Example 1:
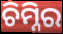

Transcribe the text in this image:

ଚିମ୍ନିର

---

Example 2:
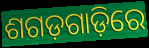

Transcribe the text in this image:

ଶଗଡ଼ଗାଡ଼ିରେ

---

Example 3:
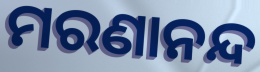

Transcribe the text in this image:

ମରଣାନନ୍ଦ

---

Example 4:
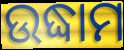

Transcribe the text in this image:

ଉଦ୍ଧାମ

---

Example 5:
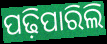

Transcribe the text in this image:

ପଢ଼ିପାରିଲି